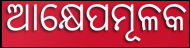
ଆକ୍ଷେପମୂଳକ